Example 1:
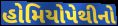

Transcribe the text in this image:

હોમિયોપેથીનો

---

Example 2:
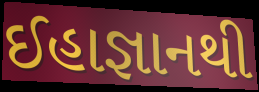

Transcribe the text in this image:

ઈહાજ્ઞાનથી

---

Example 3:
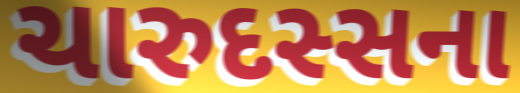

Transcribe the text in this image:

ચારુદસ્સના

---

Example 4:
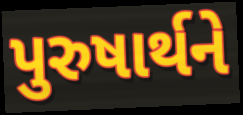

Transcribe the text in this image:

પુરુષાર્થને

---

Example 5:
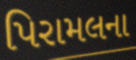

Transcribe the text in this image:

પિરામલના